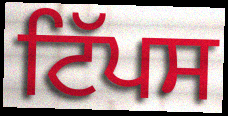
ਟਿੱਪਸ